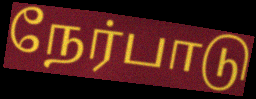
நேர்பாடு